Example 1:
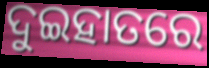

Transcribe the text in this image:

ଦୁଇହାତରେ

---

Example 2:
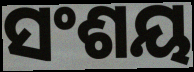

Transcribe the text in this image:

ସଂଶୟ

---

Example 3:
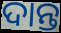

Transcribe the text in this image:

ଦାନ୍ତ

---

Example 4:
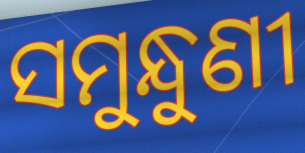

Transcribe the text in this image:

ସମୁନ୍ଧୁଣୀ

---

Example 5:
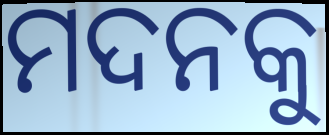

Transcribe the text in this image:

ମଦନକୁ